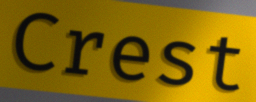
Crest